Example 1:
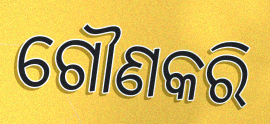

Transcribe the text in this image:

ଗୌଣକରି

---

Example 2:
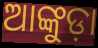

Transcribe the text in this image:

ଆଙ୍କୁଡ଼ା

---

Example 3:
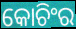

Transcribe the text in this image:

କୋଚିଂର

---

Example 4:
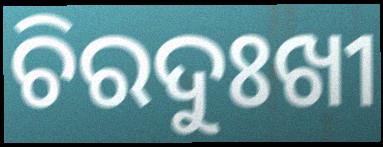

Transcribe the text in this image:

ଚିରଦୁଃଖୀ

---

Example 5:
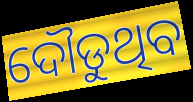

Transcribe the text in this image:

ଦୌଡୁଥିବ